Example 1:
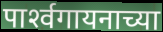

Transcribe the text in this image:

पार्श्वगायनाच्या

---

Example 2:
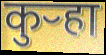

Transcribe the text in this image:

कुऱ्हा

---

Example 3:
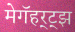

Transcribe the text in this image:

मेगॅहर्ट्झ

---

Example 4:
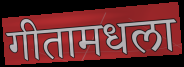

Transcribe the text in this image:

गीतामधला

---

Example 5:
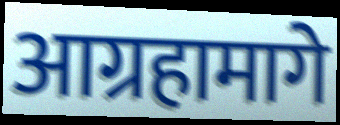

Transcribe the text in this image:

आग्रहामागे